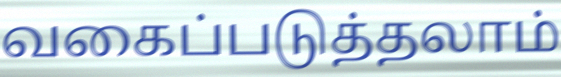
வகைப்படுத்தலாம்